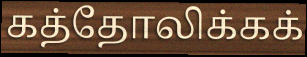
கத்தோலிக்கக்